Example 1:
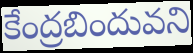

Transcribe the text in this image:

కేంద్రబిందువని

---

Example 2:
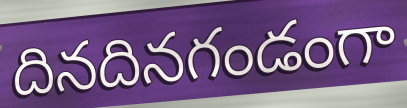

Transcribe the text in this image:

దినదినగండంగా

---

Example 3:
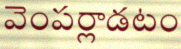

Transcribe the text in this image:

వెంపర్లాడటం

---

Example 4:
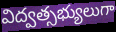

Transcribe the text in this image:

విద్వత్సభ్యులుగా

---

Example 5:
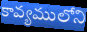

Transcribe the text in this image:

కావ్యములోని